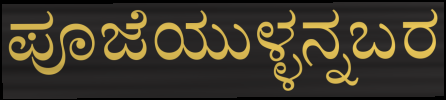
ಪೂಜೆಯುಳ್ಳನ್ನಬರ